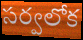
సర్వలోక